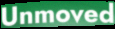
Unmoved